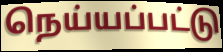
நெய்யப்பட்டு